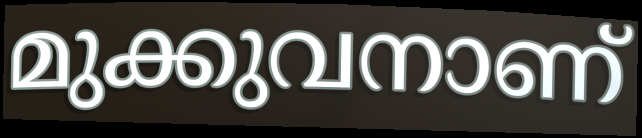
മുക്കുവനാണ്